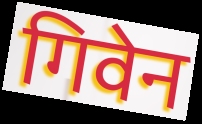
गिवेन